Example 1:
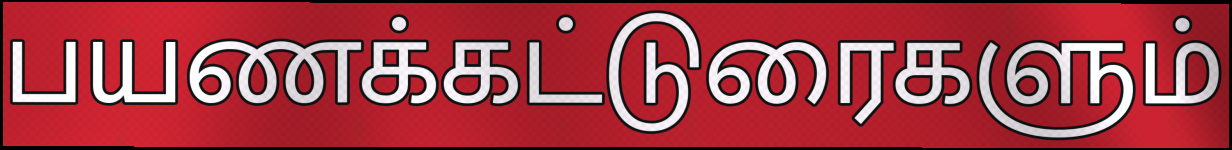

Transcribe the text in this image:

பயணக்கட்டுரைகளும்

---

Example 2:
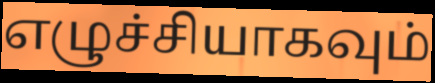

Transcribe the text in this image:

எழுச்சியாகவும்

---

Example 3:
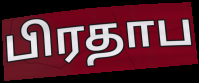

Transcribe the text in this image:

பிரதாப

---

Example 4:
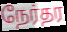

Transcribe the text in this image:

நேர்தர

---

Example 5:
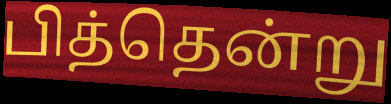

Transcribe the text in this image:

பித்தென்று